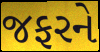
જફરને